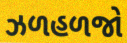
ઝળહળજો